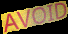
AVOID